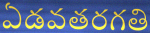
ఏడవతరగతి